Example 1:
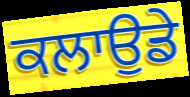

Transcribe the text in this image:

ਕਲਾਉਡੇ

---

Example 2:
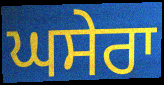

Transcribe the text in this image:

ਘਸੇਰਾ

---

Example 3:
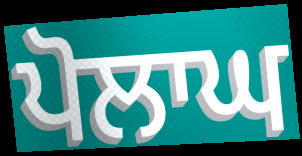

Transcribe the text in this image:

ਪੋਲਾਘ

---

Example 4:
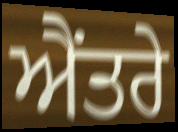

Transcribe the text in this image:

ਐਂਤਰੇ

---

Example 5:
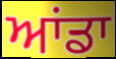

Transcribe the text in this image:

ਆਂਡਾ